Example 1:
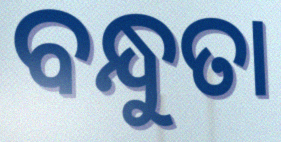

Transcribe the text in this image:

ବନ୍ଧୁତା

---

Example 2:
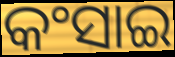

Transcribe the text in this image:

କଂସାଇ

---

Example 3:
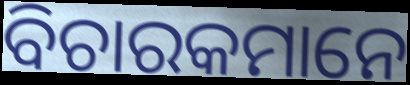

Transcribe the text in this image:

ବିଚାରକମାନେ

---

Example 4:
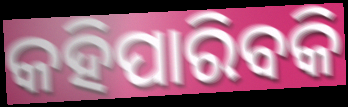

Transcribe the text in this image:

କହିପାରିବକି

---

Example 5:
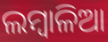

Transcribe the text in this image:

ଲମ୍ବାଳିଆ